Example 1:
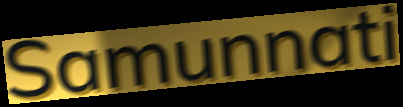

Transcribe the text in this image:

Samunnati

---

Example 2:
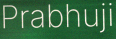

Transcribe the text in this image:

Prabhuji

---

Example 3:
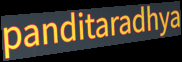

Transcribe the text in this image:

panditaradhya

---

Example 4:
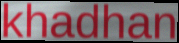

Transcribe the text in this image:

khadhan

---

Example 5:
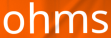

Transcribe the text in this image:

ohms